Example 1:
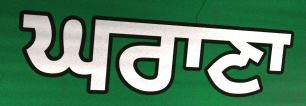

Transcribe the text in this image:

ਘਰਾਣਾ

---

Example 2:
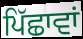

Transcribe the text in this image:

ਪਿੱਛਾਵਾਂ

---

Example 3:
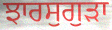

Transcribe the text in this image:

ਝਾਰਸੁਗੁੜਾ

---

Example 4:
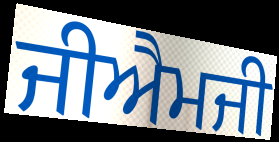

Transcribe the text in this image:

ਜੀਐਮਜੀ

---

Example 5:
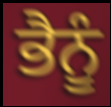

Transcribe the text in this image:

ਭੈਨੂੰ